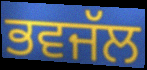
ਭਵਜੱਲ